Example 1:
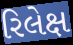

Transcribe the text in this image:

રિલેક્ષ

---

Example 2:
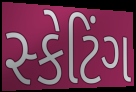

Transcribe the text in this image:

સ્કેટિંગ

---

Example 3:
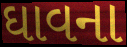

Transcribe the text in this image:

ઘાવના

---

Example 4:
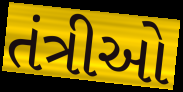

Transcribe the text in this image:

તંત્રીઓ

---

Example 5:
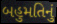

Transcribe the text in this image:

બહુમતિનું